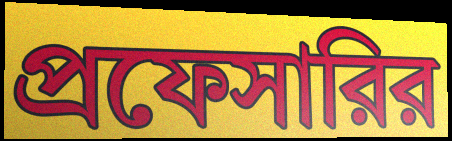
প্রফেসারির